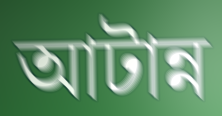
আটান্ন